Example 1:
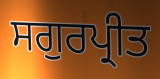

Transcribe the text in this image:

ਸਗੁਰਪ੍ਰੀਤ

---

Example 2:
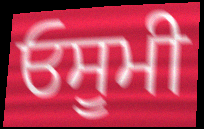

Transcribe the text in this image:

ਓਸੂਮੀ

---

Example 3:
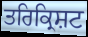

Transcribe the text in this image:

ਤਰਿਕ੍ਰਿਸ਼ਟ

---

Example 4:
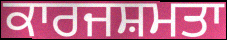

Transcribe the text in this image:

ਕਾਰਜਸ਼ਮਤਾ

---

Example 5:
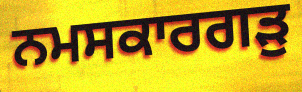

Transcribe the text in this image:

ਨਮਸਕਾਰਗੜੁ